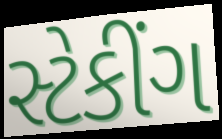
સ્ટેકીંગ